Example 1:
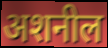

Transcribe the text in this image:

अशनील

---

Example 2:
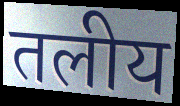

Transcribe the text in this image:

तलीय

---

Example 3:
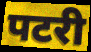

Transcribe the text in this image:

पटरी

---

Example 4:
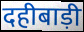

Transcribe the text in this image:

दहीबाड़ी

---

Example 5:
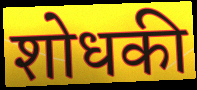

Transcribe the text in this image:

शोधकी